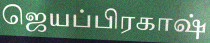
ஜெயப்பிரகாஷ்